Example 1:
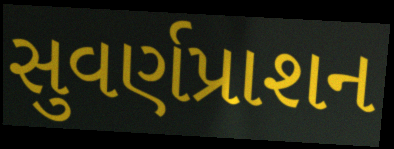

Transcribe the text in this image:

સુવર્ણપ્રાશન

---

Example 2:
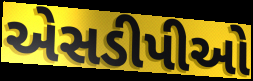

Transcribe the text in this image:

એસડીપીઓ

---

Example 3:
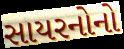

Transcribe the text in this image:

સાયરનોનો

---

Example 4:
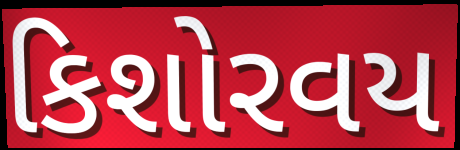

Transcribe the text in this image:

કિશોરવય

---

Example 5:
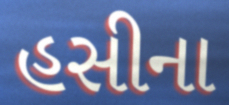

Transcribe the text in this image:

હસીના